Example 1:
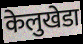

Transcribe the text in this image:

केलुखेडा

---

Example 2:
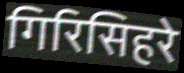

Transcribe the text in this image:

गिरिसिहरे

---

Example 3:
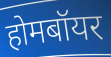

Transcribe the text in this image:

होमबॉयर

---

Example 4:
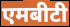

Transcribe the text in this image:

एमबीटी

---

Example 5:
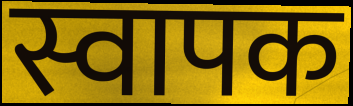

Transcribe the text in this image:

स्‍वापक